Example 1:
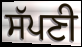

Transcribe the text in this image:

ਸੱਪਣੀ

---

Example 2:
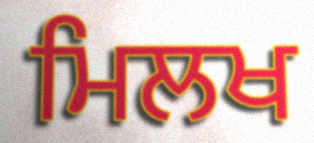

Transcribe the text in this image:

ਮਿਲਖ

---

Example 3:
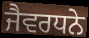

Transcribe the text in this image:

ਜੈਵਰਧਨੇ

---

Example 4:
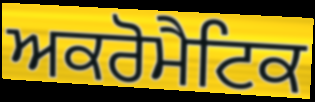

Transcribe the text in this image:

ਅਕਰੋਮੈਟਿਕ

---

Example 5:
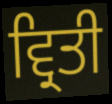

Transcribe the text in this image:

ਵ੍ਰਿਤੀ